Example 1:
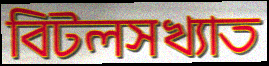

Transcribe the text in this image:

বিটলসখ্যাত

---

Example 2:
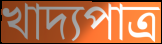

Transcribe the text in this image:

খাদ্যপাত্র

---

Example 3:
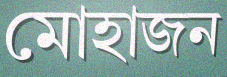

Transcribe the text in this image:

মোহাজন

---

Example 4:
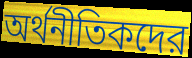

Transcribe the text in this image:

অর্থনীতিকদের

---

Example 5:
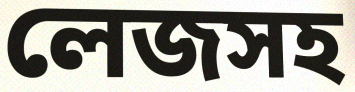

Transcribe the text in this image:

লেজসহ